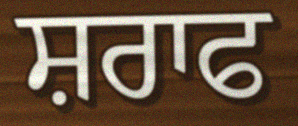
ਸ਼ਰਾਫ